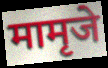
मामृजे